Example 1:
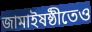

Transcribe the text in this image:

জামাইষষ্ঠীতেও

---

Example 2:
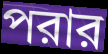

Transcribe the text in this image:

পরার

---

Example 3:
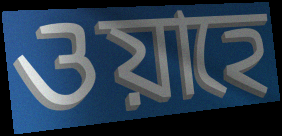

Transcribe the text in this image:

ওয়াহে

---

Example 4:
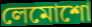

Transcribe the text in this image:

লেমোশো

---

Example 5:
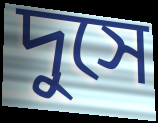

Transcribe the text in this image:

দুসে